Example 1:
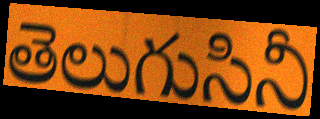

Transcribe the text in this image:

తెలుగుసినీ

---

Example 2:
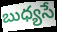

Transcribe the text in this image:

బుధ్యసే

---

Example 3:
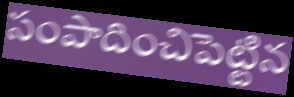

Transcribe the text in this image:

సంపాదించిపెట్టిన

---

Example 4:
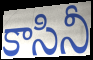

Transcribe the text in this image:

కాసినీ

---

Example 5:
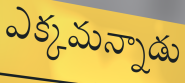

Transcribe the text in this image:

ఎక్కమన్నాడు